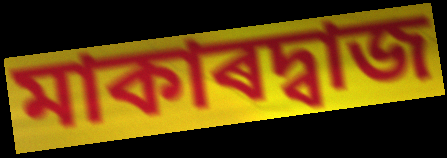
মাকাৰদ্বাজ